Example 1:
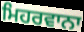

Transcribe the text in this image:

ਮਿਹਰਵਾਨਾ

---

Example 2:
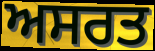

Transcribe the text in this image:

ਅਸਰਤ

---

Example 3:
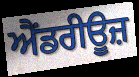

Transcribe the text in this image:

ਐਂਡਰੀਊਜ਼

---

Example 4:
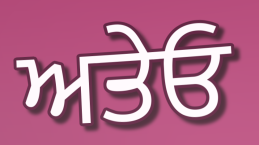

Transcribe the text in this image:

ਅਤੇਓ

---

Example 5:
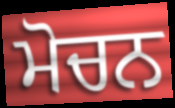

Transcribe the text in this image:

ਮੋਚਨ